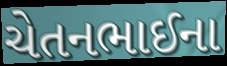
ચેતનભાઈના